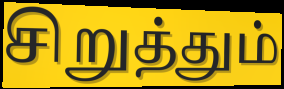
சிறுத்தும்